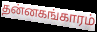
தன்னகங்காரம்